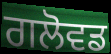
ਗਲੋਵਡ